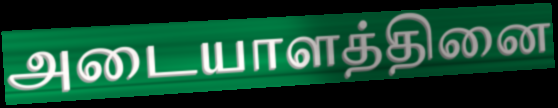
அடையாளத்தினை